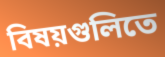
বিষয়গুলিতে